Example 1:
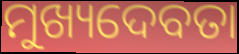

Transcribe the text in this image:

ମୁଖ୍ୟଦେବତା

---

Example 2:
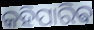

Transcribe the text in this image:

କହିପାରିଵ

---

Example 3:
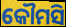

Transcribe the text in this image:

କୌମସି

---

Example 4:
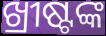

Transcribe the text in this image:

ଖ୍ରୀଷ୍ଟଙ୍କ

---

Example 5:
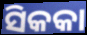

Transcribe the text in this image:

ସିକକା